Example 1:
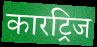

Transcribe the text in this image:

कारट्रिज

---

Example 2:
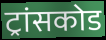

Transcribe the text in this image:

ट्रांसकोड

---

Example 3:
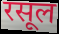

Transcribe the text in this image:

रसूल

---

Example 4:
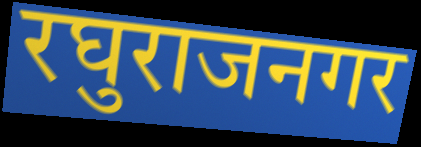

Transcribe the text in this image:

रघुराजनगर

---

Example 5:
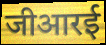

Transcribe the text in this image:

जीआरई